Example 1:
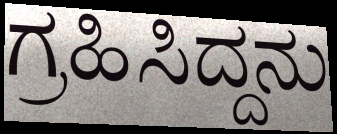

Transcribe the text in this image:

ಗ್ರಹಿಸಿದ್ದನು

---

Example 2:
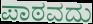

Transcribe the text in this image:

ಪಾಠವದು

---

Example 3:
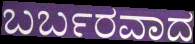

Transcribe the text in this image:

ಬರ್ಬರವಾದ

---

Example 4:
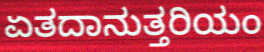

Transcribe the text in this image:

ಏತದಾನುತ್ತರಿಯಂ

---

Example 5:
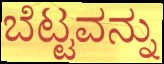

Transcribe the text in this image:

ಬೆಟ್ಟವನ್ನು